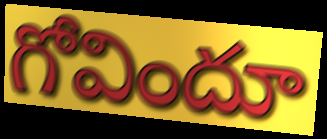
గోవిందూ